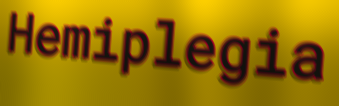
Hemiplegia